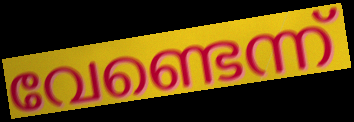
വേണ്ടെന്ന്